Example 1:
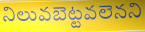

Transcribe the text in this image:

నిలువబెట్టవలెనని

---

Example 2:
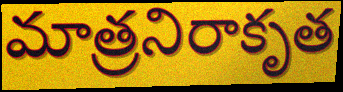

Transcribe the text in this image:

మాత్రనిరాకృత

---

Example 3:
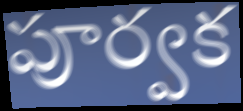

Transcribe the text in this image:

పూర్వక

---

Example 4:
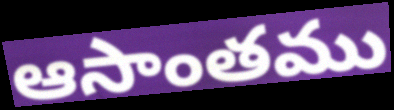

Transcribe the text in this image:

ఆసాంతము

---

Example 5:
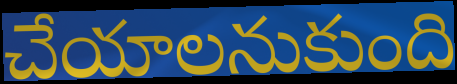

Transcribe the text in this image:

చేయాలనుకుంది